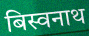
बिस्वनाथ